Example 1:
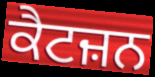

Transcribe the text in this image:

ਕੈਟਜ਼ਨ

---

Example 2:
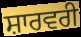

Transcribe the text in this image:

ਸ਼ਾਰਵਰੀ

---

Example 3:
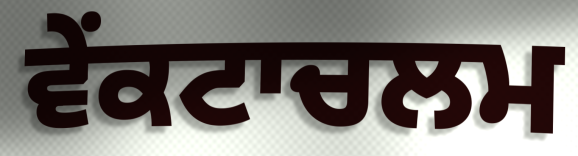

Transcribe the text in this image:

ਵੇਂਕਟਾਚਲਮ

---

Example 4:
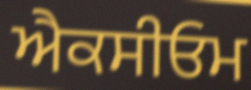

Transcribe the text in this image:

ਐਕਸੀਓਮ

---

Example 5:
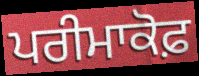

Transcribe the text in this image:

ਪਰੀਮਾਕੋਫ਼